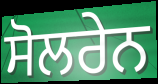
ਸੋਲਰੇਨ